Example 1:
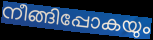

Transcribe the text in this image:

നീങ്ങിപ്പോകയും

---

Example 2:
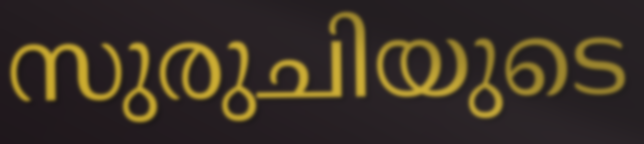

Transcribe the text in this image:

സുരുചിയുടെ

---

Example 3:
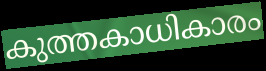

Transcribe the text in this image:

കുത്തകാധികാരം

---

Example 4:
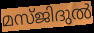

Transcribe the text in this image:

മസ്ജിദുൽ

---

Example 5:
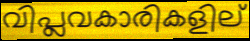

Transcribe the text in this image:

വിപ്ലവകാരികളില്